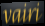
vairi